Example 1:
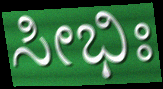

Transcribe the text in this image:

ಸೀಭಿಃ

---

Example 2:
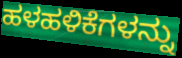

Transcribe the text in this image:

ಹಳಹಳಿಕೆಗಳನ್ನು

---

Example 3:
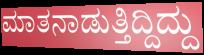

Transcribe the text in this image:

ಮಾತನಾಡುತ್ತಿದ್ದಿದ್ದು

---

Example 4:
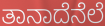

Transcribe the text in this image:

ತಾನಾದೆನೆಲೆ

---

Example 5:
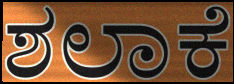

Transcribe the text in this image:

ಶಲಾಕೆ